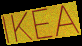
IKEA